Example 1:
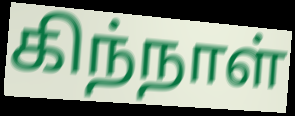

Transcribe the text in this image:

கிந்நாள்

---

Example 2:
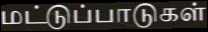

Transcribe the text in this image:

மட்டுப்பாடுகள்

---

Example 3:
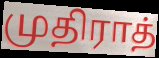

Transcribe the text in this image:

முதிராத்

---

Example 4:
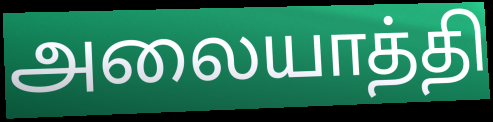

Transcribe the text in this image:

அலையாத்தி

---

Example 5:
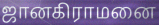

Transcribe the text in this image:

ஜானகிராமனை